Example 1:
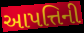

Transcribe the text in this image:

આપત્તિની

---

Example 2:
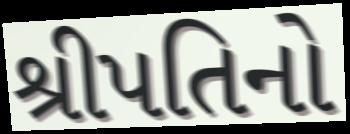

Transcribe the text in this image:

શ્રીપતિનો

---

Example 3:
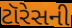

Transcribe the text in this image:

ટૉરેસની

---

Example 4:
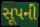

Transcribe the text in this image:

સૂપની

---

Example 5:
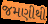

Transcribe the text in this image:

જમણીથી